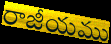
రాజీయము